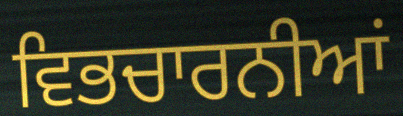
ਵਿਭਚਾਰਨੀਆਂ